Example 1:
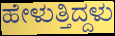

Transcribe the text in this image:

ಹೇಳುತ್ತಿದ್ದಳು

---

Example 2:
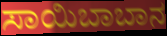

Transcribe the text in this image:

ಸಾಯಿಬಾಬಾನ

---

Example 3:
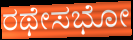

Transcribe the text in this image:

ರಥೇಸಭೋ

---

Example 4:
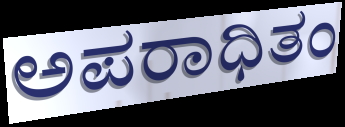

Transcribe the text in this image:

ಅಪರಾಧಿತಂ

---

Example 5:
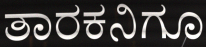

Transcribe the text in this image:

ತಾರಕನಿಗೂ